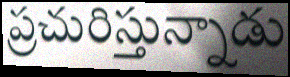
ప్రచురిస్తున్నాడు